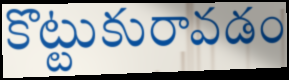
కొట్టుకురావడం